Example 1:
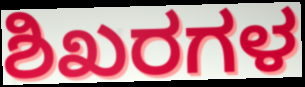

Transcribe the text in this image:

ಶಿಖರಗಳ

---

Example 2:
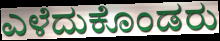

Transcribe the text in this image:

ಎಳೆದುಕೊಂಡರು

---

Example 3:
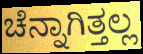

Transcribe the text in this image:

ಚೆನ್ನಾಗಿತ್ತಲ್ಲ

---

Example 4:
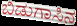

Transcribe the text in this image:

ಬಿಡುಗಾಸಿನ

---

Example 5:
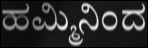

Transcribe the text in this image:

ಹಮ್ಮಿನಿಂದ